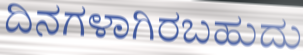
ದಿನಗಳಾಗಿರಬಹುದು